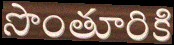
సొంతూరికి